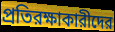
প্রতিরক্ষাকারীদের